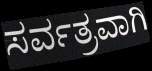
ಸರ್ವತ್ರವಾಗಿ